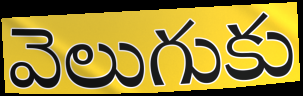
వెలుగుకు